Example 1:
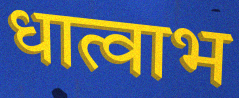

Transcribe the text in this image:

धात्वाभ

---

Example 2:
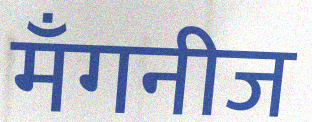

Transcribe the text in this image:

मँगनीज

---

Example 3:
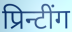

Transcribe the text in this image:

प्रिन्टींग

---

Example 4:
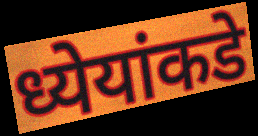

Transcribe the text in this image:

ध्येयांकडे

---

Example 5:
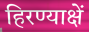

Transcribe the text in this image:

हिरण्याक्षें